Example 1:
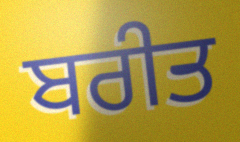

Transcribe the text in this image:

ਬਰੀਤ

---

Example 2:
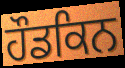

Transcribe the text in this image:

ਹੌਡਕਿਨ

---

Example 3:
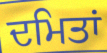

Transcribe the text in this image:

ਦਮਿਤਾਂ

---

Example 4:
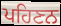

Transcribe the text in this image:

ਪਹਿਣਨ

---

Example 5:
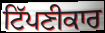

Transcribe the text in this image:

ਟਿੱਪਣੀਕਾਰ